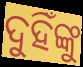
ଦୁହିଁଙ୍କୁ